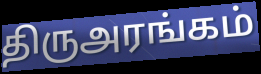
திருஅரங்கம்